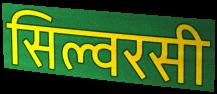
सिल्वरसी